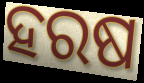
ହରଷ